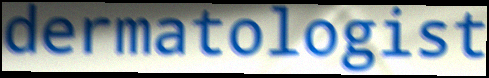
dermatologist